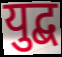
युद्ब